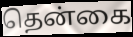
தென்கை